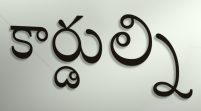
కార్డుల్ని